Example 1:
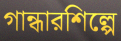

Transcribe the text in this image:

গান্ধারশিল্পে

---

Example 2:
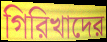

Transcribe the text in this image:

গিরিখাদের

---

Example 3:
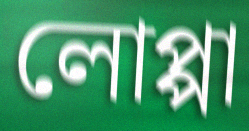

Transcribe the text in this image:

লোপ্পা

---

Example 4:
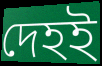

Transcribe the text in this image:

দেহই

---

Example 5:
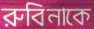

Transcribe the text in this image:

রুবিনাকে